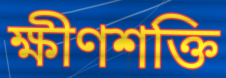
ক্ষীণশক্তি